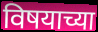
विषयाच्या